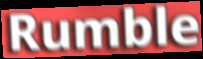
Rumble